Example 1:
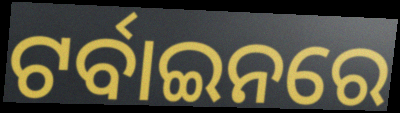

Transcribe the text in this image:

ଟର୍ବାଇନରେ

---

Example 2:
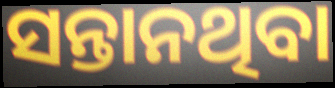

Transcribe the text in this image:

ସନ୍ତାନଥିବା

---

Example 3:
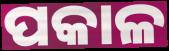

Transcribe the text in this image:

ପକାଳ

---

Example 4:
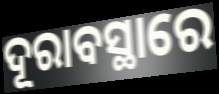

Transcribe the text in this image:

ଦୂରାବସ୍ଥାରେ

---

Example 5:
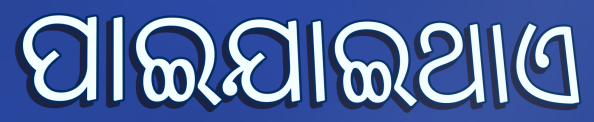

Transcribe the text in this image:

ପାଇଯାଇଥାଏ